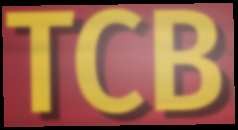
TCB